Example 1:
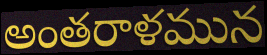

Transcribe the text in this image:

అంతరాళమున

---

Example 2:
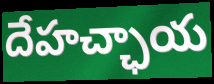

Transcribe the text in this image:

దేహచ్ఛాయ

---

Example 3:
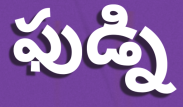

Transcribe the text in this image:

ఫుడ్ని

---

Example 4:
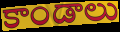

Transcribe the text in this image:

కాండాలు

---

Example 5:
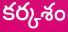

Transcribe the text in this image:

కర్కశం